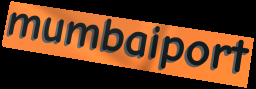
mumbaiport